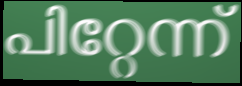
പിറ്റേന്ന്